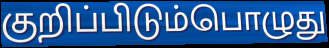
குறிப்பிடும்பொழுது